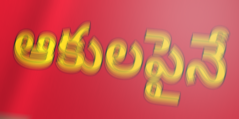
ఆకులపైనే